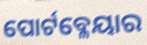
ପୋର୍ଟବ୍ଳେୟାର